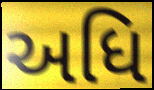
અધિ